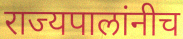
राज्यपालांनीच